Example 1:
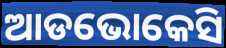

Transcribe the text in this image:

ଆଡଭୋକେସି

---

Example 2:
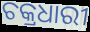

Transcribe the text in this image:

ଚକ୍ରଧାରୀ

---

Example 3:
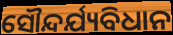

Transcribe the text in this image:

ସୌନ୍ଦର୍ଯ୍ୟବିଧାନ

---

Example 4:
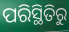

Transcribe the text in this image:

ପରିସ୍ଥିତିରୁ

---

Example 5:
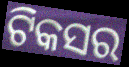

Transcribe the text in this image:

ଟିକସର